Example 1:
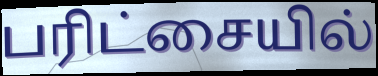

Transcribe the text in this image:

பரிட்சையில்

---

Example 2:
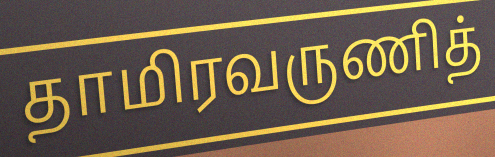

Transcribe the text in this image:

தாமிரவருணித்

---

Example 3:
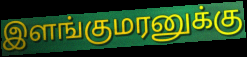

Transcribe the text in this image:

இளங்குமரனுக்கு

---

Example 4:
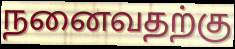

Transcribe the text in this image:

நனைவதற்கு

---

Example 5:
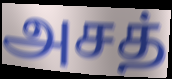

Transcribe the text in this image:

அசத்